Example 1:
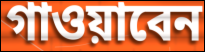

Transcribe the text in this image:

গাওয়াবেন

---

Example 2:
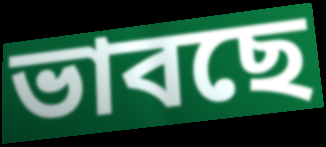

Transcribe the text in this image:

ভাবছে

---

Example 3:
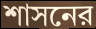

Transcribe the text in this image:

শাসনের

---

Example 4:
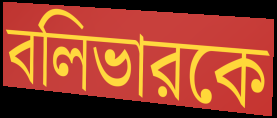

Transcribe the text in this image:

বলিভারকে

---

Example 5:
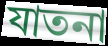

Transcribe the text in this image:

যাতনা